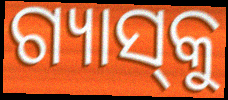
ଗ୍ୟାସ୍‌କୁ